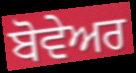
ਬੋਵੇਅਰ